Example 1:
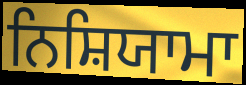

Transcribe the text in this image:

ਨਿਸ਼ਿਯਾਮਾ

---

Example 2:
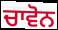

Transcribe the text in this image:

ਚਾਵੋਨ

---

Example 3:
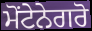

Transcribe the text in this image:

ਮੋਂਟੇਨੇਗਰੋ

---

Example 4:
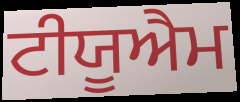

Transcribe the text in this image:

ਟੀਯੂਐਮ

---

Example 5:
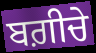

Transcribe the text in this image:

ਬਗ਼ੀਚੇ